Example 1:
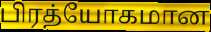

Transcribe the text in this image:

பிரத்யோகமான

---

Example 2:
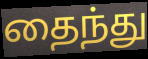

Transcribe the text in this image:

தைந்து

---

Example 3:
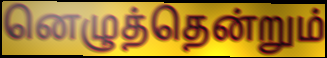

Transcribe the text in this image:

னெழுத்தென்றும்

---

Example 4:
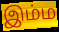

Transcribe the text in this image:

இம்ம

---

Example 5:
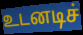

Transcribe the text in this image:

உடனடிச்